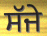
ਸੱਜੇ